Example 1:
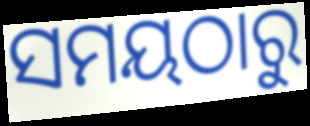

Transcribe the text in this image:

ସମୟଠାରୁ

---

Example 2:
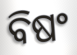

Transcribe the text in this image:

ବିଷଂ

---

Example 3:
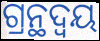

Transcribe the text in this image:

ଗ୍ରନ୍ଥଦ୍ଵୟ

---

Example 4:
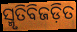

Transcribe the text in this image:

ସ୍ମୃତିବିଜଡ଼ିତ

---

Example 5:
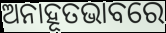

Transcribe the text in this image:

ଅନାହୂତଭାବରେ